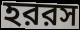
হররস